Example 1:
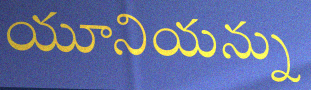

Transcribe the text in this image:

యూనియన్ను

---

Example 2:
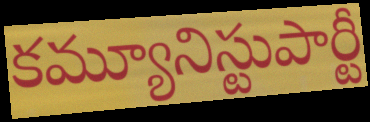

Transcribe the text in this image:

కమ్యూనిస్టుపార్టీ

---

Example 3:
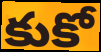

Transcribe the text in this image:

కుకో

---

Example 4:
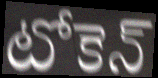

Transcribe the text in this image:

టోకెన్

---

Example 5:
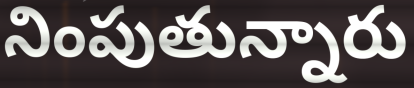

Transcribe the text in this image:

నింపుతున్నారు